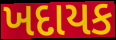
ખદાયક